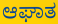
ಆಘಾತ